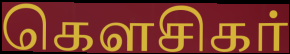
கௌசிகர்